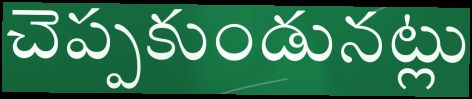
చెప్పకుండునట్లు